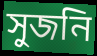
সুজনি